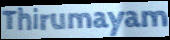
Thirumayam